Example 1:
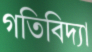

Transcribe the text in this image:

গতিবিদ্যা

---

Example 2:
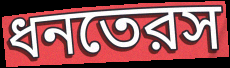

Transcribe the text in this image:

ধনতেরস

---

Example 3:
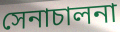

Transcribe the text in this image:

সেনাচালনা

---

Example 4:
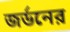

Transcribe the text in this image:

জর্ডনের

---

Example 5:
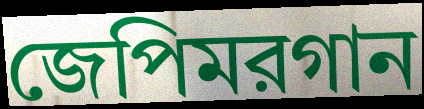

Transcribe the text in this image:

জেপিমরগান